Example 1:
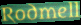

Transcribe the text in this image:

Rodmell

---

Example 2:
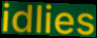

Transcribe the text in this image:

idlies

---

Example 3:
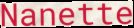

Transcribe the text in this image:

Nanette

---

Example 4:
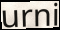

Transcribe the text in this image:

urni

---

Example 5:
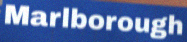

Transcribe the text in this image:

Marlborough